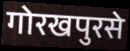
गोरखपुरसे